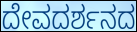
ದೇವದರ್ಶನದ